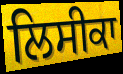
ਲਿਸੀਕਾ